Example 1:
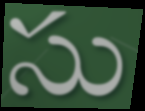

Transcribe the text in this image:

సు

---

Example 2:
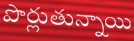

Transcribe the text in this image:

పొర్లుతున్నాయి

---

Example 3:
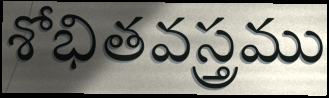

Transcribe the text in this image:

శోభితవస్త్రము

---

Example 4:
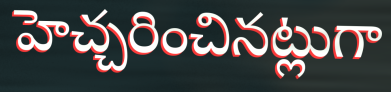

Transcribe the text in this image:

హెచ్చరించినట్లుగా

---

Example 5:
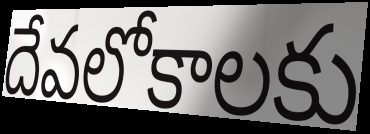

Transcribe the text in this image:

దేవలోకాలకు